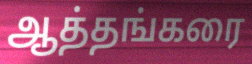
ஆத்தங்கரை